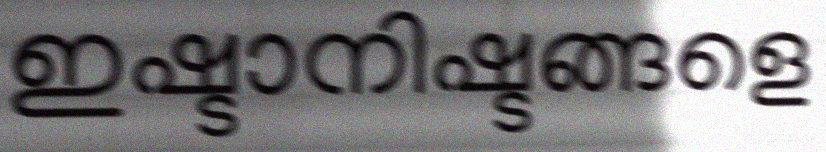
ഇഷ്ടാനിഷ്ടങ്ങളെ